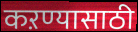
कऱण्यासाठी